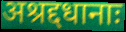
अश्रद्दधानाः